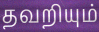
தவறியும்